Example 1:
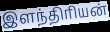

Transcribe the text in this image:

இளந்திரியன்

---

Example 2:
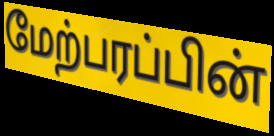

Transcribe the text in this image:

மேற்பரப்பின்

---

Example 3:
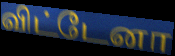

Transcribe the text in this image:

விட்டேனா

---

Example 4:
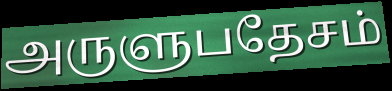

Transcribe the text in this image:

அருளுபதேசம்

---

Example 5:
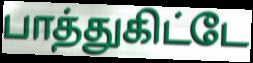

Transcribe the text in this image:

பாத்துகிட்டே